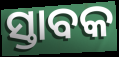
ସ୍ତାବକ